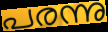
പരന്നു